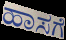
ಹಾಸಗೆ